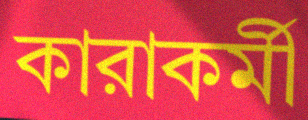
কারাকর্মী